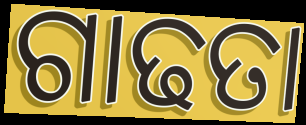
ଗାଢତା